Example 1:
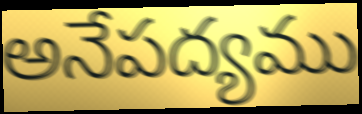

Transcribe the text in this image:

అనేపద్యము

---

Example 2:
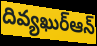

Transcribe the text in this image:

దివ్యఖుర్ఆన్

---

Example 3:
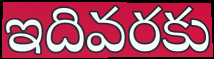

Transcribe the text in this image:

ఇదివరకు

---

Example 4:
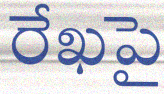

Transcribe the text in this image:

రేఖపై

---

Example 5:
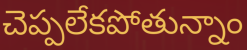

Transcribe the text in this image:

చెప్పలేకపోతున్నాం